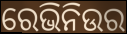
ରେଭିନିଉର